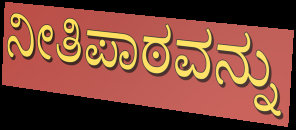
ನೀತಿಪಾಠವನ್ನು